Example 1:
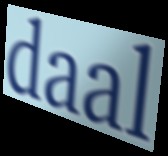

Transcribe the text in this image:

daal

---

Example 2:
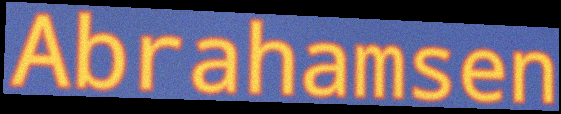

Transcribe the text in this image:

Abrahamsen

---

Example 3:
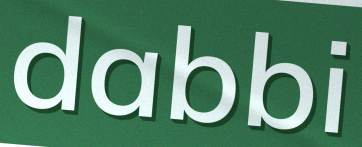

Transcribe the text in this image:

dabbi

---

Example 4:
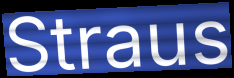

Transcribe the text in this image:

Straus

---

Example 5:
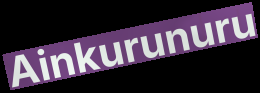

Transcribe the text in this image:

Ainkurunuru